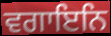
ਵਗਾਇਨਿ